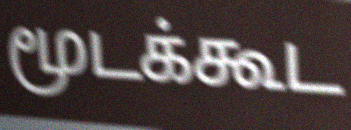
மூடக்கூட